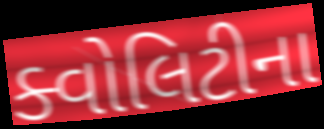
ક્વોલિટીના